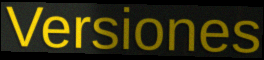
Versiones